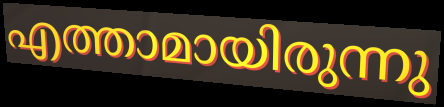
എത്താമായിരുന്നു